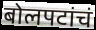
बोलपटांचं